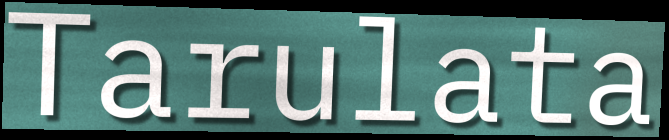
Tarulata